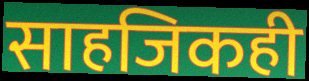
साहजिकही